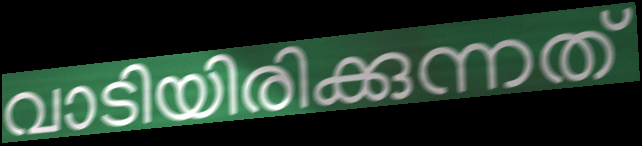
വാടിയിരിക്കുന്നത്